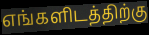
எங்களிடத்திற்கு